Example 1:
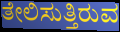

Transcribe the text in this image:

ತೇಲಿಸುತ್ತಿರುವ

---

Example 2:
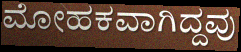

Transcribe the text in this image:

ಮೋಹಕವಾಗಿದ್ದವು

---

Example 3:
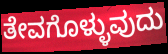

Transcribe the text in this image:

ತೇವಗೊಳ್ಳುವುದು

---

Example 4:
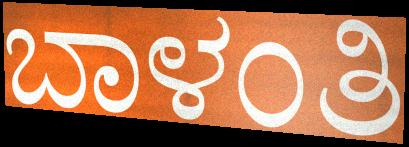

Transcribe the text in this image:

ಬಾಳಂತಿ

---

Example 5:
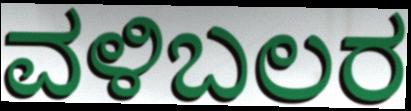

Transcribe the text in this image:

ವಳಿಬಲರ